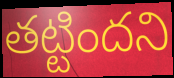
తట్టిందని